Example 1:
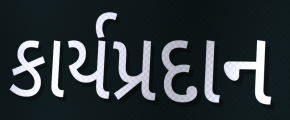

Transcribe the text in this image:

કાર્યપ્રદાન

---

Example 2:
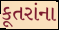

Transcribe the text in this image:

કૂતરાંના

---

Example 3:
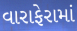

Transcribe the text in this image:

વારાફેરામાં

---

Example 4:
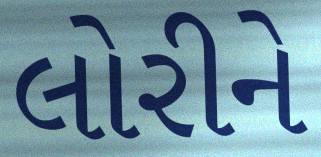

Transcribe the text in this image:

લોરીને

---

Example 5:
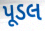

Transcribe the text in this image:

પૂડલ